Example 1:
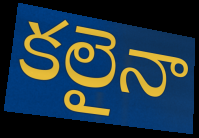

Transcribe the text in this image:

కలైనా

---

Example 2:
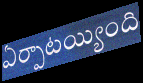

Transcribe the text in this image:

ఏర్పాటయ్యింది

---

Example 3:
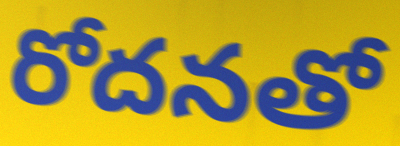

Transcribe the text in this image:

రోదనతో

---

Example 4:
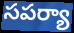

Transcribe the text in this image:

సపర్యా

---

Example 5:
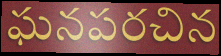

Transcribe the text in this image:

ఘనపరచిన